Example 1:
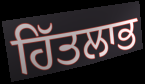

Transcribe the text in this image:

ਹਿੱਤਲਾਭ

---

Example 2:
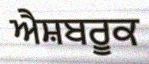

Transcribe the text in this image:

ਐਸ਼ਬਰੂਕ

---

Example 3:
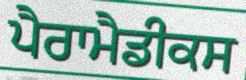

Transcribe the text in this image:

ਪੈਰਾਮੈਡੀਕਸ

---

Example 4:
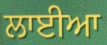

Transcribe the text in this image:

ਲਾਈਆ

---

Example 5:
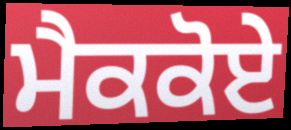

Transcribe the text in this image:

ਮੈਕਕੋਏ